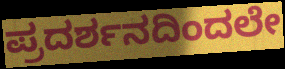
ಪ್ರದರ್ಶನದಿಂದಲೇ